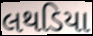
લથડિયા